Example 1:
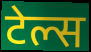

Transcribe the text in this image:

टेल्स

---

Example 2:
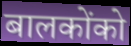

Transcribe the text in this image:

बालकोंको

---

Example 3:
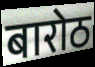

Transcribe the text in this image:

बारोठ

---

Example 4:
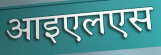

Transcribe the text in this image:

आइएलएस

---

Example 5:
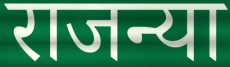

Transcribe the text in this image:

राजन्या